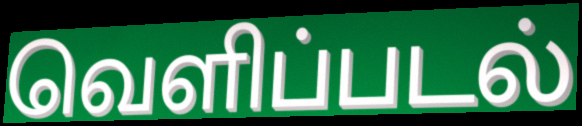
வெளிப்படல்